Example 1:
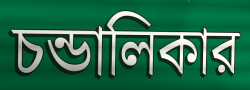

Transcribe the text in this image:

চন্ডালিকার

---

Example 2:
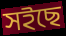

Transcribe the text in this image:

সইছে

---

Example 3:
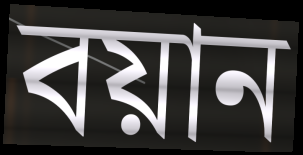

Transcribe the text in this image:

বয়ান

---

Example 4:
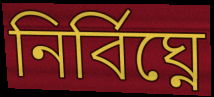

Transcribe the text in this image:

নির্বিঘ্নে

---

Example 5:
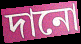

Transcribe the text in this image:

দানো